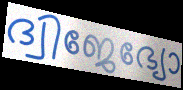
ദ്വിജേഭ്യോ